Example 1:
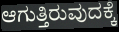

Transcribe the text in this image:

ಆಗುತ್ತಿರುವುದಕ್ಕೆ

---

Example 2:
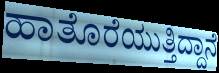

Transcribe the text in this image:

ಹಾತೊರೆಯುತ್ತಿದ್ದಾನೆ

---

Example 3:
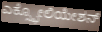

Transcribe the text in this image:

ಎಕ್ಸ್ಫೋಲಿಯೇಶನ್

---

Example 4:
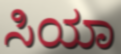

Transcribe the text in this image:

ಸಿಯಾ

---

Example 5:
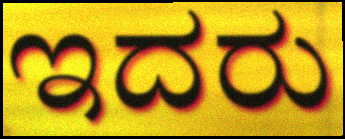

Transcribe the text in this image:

ಇದರು